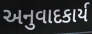
અનુવાદકાર્ય